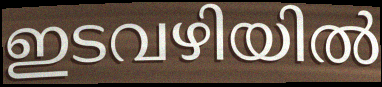
ഇടവഴിയിൽ